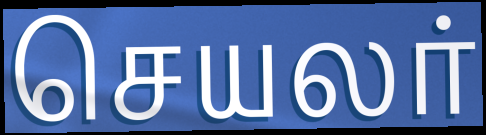
செயலர்